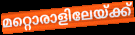
മറ്റൊരാളിലേയ്ക്ക്